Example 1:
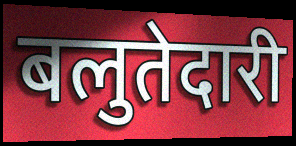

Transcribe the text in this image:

बलुतेदारी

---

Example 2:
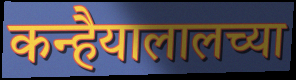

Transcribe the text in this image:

कन्हैयालालच्या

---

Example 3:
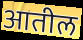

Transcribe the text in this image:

आतील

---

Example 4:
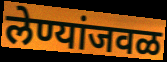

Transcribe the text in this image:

लेण्यांजवळ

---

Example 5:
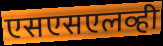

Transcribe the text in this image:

एसएसएलव्ही